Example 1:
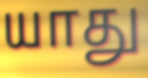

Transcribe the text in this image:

யாது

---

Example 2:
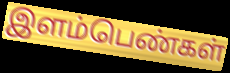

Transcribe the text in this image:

இளம்பெண்கள்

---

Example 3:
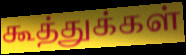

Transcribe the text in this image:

கூத்துக்கள்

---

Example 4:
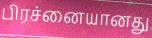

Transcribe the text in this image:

பிரச்னையானது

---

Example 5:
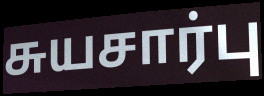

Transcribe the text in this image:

சுயசார்பு